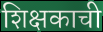
शिक्षकाची